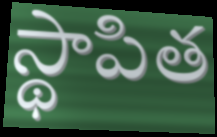
స్థాపిత